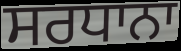
ਸਰਧਾਨਾ